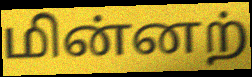
மின்னற்